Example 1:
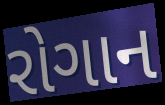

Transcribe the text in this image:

રોગાન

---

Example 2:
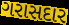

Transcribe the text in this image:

ગરાસદાર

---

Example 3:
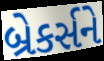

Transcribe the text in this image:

બ્રેકર્સને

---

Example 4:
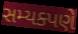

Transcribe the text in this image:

સમ્યક્પણે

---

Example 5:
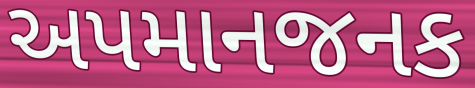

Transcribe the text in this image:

અપમાનજનક